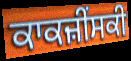
ਕਾਕਜ਼ੀੰਸਕੀ